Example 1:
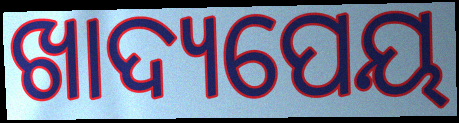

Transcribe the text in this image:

ଖାଦ୍ୟପେୟ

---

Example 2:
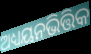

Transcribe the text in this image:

ଅଧ୍ୟୟନଭିତ୍ତିକ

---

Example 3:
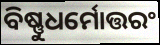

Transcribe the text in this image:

ବିଷ୍ଣୁଧର୍ମୋତ୍ତରଂ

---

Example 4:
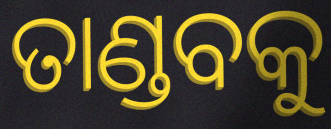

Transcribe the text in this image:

ତାଣ୍ଡବକୁ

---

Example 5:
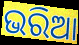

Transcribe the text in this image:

ଭରିଆ